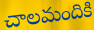
చాలమందికి